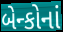
બેન્કોનાં